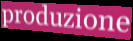
produzione